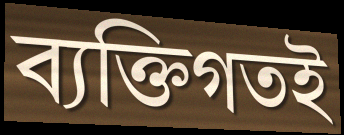
ব্যক্তিগতই